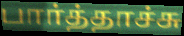
பார்த்தாச்சு